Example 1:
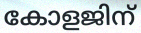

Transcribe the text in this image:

കോളജിന്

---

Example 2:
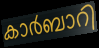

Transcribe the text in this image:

കാർബാറി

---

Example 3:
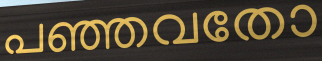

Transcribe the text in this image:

പഞ്ഞവതോ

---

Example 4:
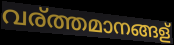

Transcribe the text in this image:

വര്ത്തമാനങ്ങള്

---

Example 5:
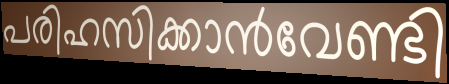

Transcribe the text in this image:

പരിഹസിക്കാൻവേണ്ടി